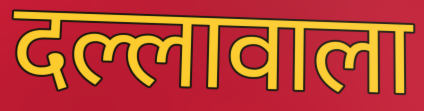
दल्लावाला